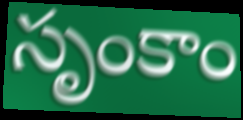
సృంకాం